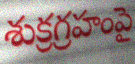
శుక్రగ్రహంపై